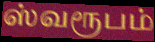
ஸ்வரூபம்